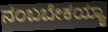
ನಂಬಬೇಕಯ್ಯಾ